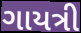
ગાયત્રી